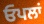
ਓਪਲਾਂ